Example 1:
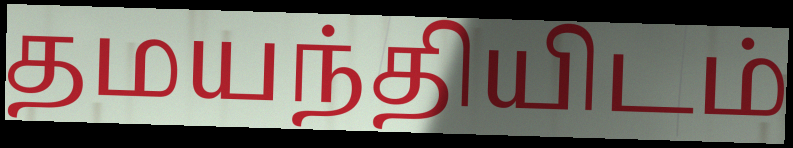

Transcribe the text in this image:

தமயந்தியிடம்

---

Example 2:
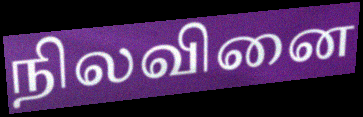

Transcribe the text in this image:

நிலவினை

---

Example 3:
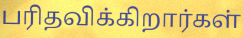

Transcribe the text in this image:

பரிதவிக்கிறார்கள்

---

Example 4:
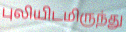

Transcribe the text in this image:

புலியிடமிருந்து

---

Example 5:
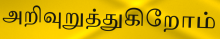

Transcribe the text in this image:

அறிவுறுத்துகிறோம்